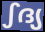
ഽദ്യ